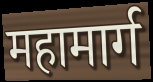
महामार्ग